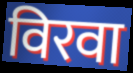
विरवा